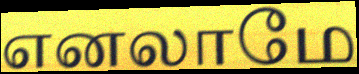
எனலாமே